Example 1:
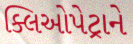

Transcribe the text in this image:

ક્લિઓપેટ્રાને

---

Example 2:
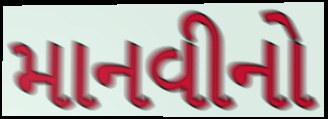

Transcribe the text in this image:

માનવીનો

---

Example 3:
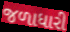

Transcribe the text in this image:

જળાધારી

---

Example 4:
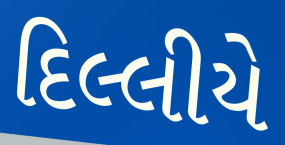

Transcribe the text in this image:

દિલ્લીયે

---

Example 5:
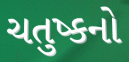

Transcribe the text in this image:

ચતુષ્કનો